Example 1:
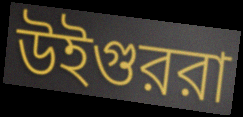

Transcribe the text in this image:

উইগুররা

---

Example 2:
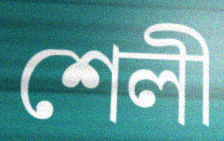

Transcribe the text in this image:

শেলী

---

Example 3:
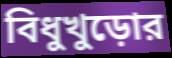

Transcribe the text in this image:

বিধুখুড়োর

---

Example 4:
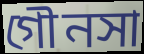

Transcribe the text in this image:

গৌনসা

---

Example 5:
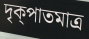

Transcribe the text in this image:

দৃক্পাতমাত্র